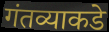
गंतव्याकडे